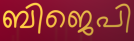
ബിജെപി